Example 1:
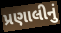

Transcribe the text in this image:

પ્રણાલીનું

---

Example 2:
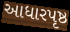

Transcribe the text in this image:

આધારપૃષ્ઠ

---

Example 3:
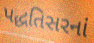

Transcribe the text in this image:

પદ્ધતિસરનાં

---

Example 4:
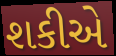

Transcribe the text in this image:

શકીએ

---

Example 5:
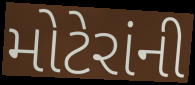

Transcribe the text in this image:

મોટેરાંની